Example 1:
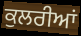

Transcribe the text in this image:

ਕੁਲਰੀਆਂ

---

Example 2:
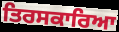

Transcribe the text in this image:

ਤਿਰਸਕਾਰਿਆ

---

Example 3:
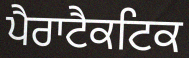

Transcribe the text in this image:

ਪੈਰਾਟੈਕਟਿਕ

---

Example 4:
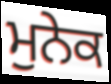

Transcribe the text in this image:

ਮੁਨੇਕ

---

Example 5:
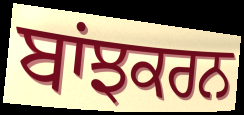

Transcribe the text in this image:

ਬਾਂਝਕਰਨ